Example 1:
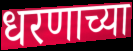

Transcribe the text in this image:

धरणाच्या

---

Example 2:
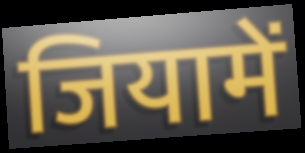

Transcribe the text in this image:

जियामें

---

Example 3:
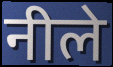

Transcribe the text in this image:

नीले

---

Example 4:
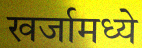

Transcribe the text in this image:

खर्जामध्ये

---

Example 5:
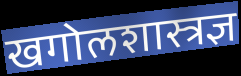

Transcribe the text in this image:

खगोलशास्त्रज्ञ